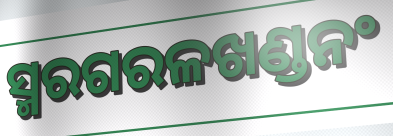
ସ୍ମରଗରଳଖଣ୍ଡନଂ